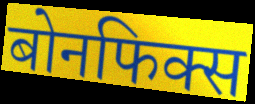
बोनफिक्स